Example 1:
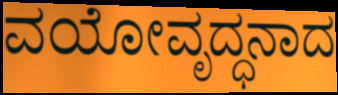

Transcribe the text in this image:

ವಯೋವೃದ್ಧನಾದ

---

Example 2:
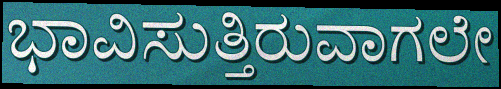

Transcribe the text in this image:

ಭಾವಿಸುತ್ತಿರುವಾಗಲೇ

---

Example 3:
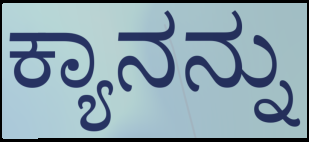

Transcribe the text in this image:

ಕ್ಯಾನನ್ನು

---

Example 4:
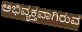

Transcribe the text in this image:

ಅಭಿವ್ಯಕ್ತವಾಗಿರುವ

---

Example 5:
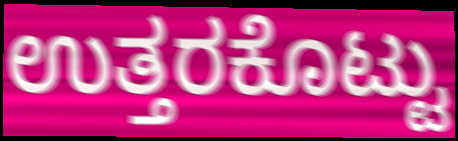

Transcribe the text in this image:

ಉತ್ತರಕೊಟ್ಟು